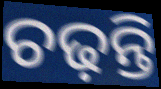
ଚଢ଼ନ୍ତି